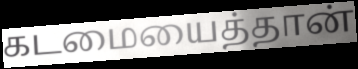
கடமையைத்தான்